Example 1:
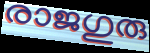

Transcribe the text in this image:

രാജഗുരു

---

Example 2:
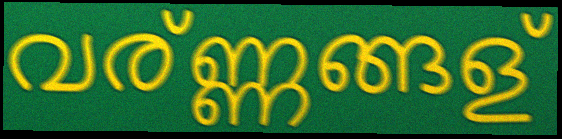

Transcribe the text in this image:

വര്ണ്ണങ്ങള്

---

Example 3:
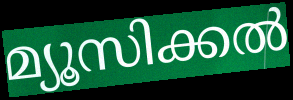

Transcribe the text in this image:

മ്യൂസിക്കൽ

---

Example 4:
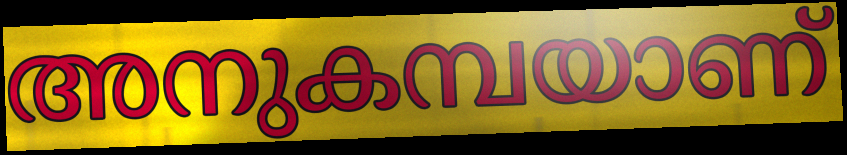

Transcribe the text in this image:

അനുകമ്പയാണ്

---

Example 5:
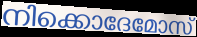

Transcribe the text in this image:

നിക്കൊദേമോസ്